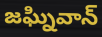
జఘ్నివాన్